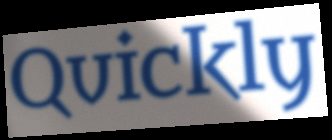
Quickly